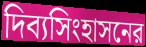
দিব্যসিংহাসনের